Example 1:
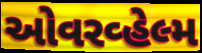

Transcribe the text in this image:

ઓવરવ્હેલ્મ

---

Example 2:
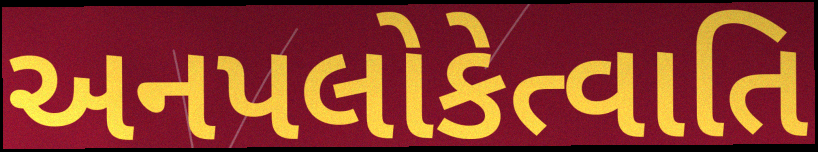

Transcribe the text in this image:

અનપલોકેત્વાતિ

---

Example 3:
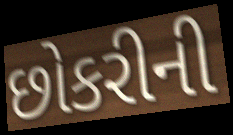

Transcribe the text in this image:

છોકરીની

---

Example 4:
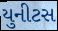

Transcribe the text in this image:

યુનીટસ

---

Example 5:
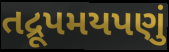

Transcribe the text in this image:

તદ્રૂપમયપણું